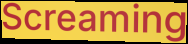
Screaming